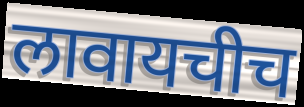
लावायचीच